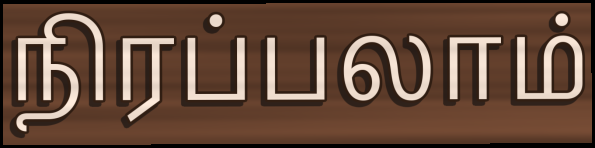
நிரப்பலாம்